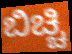
ಬಿಚ್ಚಿ